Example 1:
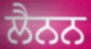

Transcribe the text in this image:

ਲੈਨਨ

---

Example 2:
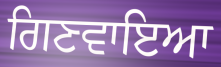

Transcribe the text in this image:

ਗਿਣਵਾਇਆ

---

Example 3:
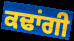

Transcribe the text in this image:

ਕਢਾਂਗੀ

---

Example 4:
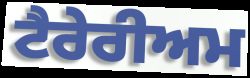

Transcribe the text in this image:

ਟੈਰੇਰੀਅਮ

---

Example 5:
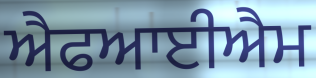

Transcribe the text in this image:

ਐਫਆਈਐਮ